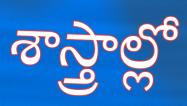
శాస్త్రాల్లో